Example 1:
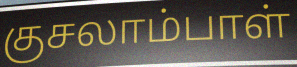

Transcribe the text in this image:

குசலாம்பாள்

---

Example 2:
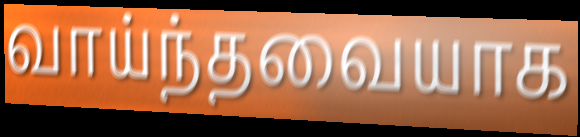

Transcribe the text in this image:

வாய்ந்தவையாக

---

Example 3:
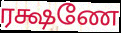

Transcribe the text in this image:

ரக்ஷணே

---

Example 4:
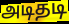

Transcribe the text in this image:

அடிதடி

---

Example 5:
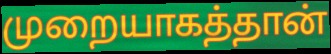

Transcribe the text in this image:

முறையாகத்தான்